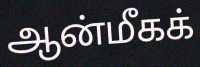
ஆன்மீகக்